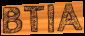
BTIA